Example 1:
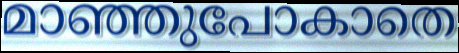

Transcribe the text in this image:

മാഞ്ഞുപോകാതെ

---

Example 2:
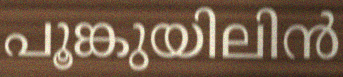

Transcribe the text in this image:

പൂങ്കുയിലിൻ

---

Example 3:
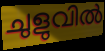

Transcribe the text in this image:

ചുളുവിൽ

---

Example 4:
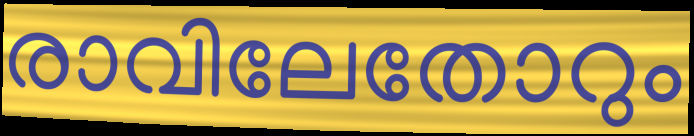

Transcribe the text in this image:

രാവിലേതോറും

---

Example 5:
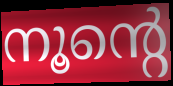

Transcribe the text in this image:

നൂന്റെ